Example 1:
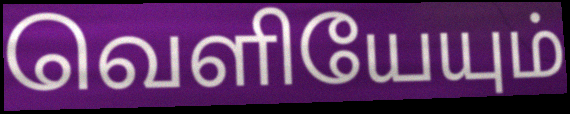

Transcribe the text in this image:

வெளியேயும்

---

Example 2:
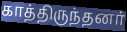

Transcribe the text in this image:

காத்திருந்தனர்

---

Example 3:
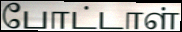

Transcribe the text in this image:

போட்டாள்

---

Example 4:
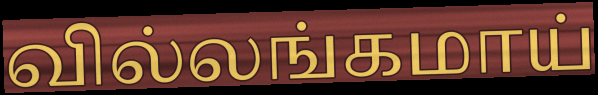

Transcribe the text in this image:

வில்லங்கமாய்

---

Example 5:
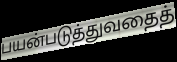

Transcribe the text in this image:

பயன்படுத்துவதைத்